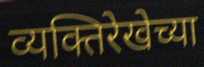
व्यक्तिरेखेच्या